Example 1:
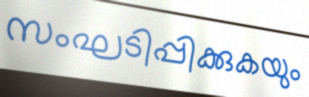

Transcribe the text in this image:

സംഘടിപ്പിക്കുകയും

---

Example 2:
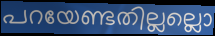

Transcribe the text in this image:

പറയേണ്ടതില്ലല്ലൊ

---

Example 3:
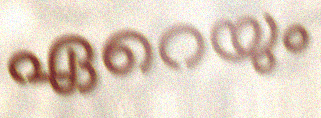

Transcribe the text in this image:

ഏറെയും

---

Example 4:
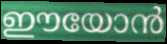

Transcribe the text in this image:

ഈയോൻ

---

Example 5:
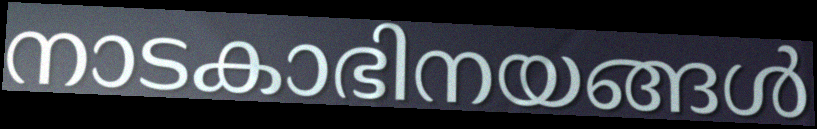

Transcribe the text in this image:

നാടകാഭിനയങ്ങൾ